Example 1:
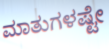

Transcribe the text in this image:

ಮಾತುಗಳಷ್ಟೇ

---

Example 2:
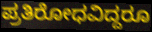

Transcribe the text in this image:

ಪ್ರತಿರೋಧವಿದ್ದರೂ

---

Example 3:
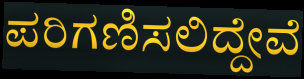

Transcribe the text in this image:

ಪರಿಗಣಿಸಲಿದ್ದೇವೆ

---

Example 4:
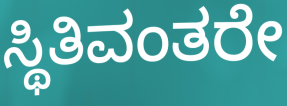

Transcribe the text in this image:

ಸ್ಥಿತಿವಂತರೇ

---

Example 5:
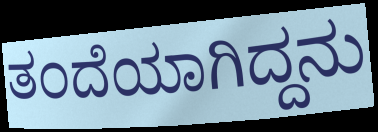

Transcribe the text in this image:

ತಂದೆಯಾಗಿದ್ದನು